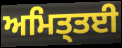
ਅਮਿਤ੍ਤਈ